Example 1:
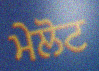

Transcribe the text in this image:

ਮੇਲੋਟ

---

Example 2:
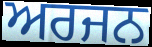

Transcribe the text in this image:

ਅਰਜਨ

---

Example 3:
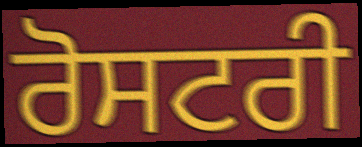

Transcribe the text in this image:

ਰੋਸਟਰੀ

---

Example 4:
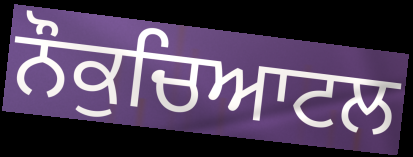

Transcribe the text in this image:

ਨੌਕੁਚਿਆਟਲ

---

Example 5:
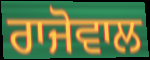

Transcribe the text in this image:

ਰਾਜੋਵਾਲ